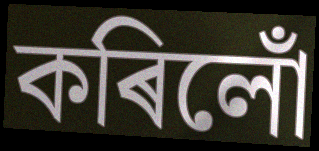
কৰিলোঁ